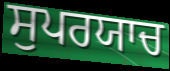
ਸੁਪਰਯਾਚ